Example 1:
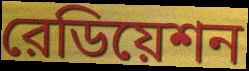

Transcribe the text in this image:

রেডিয়েশন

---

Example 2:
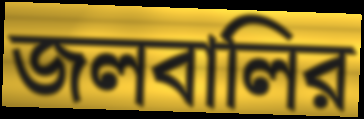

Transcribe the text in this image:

জলবালির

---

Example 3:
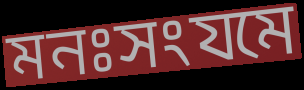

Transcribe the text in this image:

মনঃসংযমে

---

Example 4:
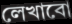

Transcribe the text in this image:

লেখাবো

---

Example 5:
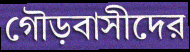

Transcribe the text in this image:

গৌড়বাসীদের